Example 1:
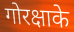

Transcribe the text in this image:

गोरक्षाके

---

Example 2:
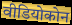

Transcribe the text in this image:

वीडियोकोन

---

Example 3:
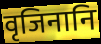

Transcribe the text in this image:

वृजिनानि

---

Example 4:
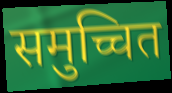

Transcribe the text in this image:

समुच्चित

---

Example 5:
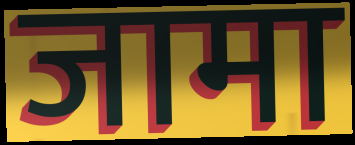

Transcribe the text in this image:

जामा